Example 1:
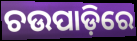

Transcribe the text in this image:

ଚଉପାଡ଼ିରେ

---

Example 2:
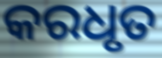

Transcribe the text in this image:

କରଧୃତ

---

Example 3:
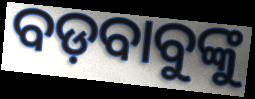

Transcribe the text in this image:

ବଡ଼ବାବୁଙ୍କୁ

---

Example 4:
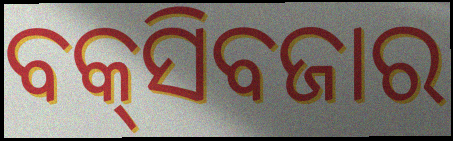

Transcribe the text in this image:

ବକ୍‍ସିବଜାର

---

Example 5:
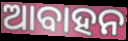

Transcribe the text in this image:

ଆବାହନ